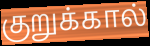
குறுக்கால்